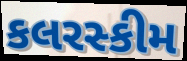
કલરસ્કીમ